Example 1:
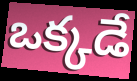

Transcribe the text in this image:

ఒక్కడే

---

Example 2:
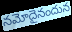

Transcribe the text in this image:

నమోదైనందున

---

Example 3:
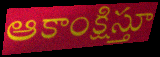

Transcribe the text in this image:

ఆకాంక్షిస్తూ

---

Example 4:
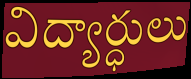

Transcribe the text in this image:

విద్యార్ధులు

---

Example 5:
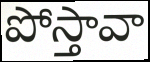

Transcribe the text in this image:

పోస్తావా